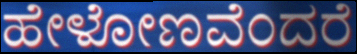
ಹೇಳೋಣವೆಂದರೆ